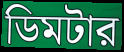
ডিমটার